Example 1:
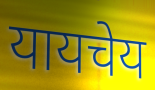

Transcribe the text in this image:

यायचेय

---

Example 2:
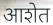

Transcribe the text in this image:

आशेत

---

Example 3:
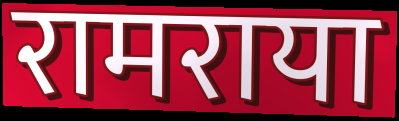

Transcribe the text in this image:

रामराया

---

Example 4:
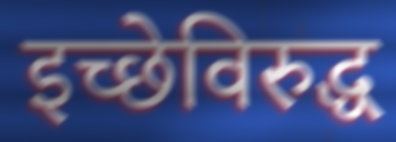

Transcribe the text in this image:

इच्छेविरुद्ध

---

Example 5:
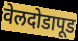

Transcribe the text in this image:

वेलदोडापूड